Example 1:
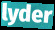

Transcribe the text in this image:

lyder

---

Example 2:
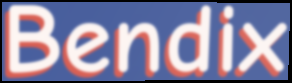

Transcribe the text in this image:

Bendix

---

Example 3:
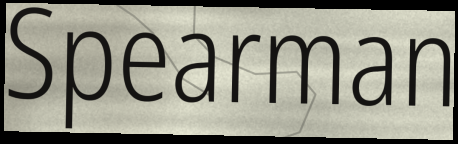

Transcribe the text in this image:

Spearman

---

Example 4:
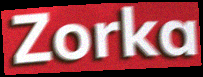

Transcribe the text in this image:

Zorka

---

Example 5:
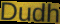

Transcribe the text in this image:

Dudh